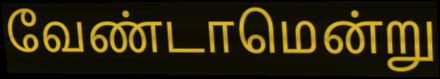
வேண்டாமென்று